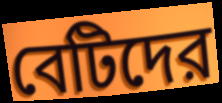
বেটিদের